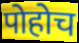
पोहोच